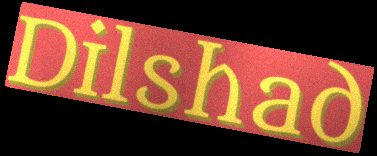
Dilshad